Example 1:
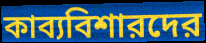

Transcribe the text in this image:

কাব্যবিশারদের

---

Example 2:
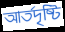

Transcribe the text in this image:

আর্তদৃষ্টি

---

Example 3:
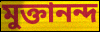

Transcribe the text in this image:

মুক্তানন্দ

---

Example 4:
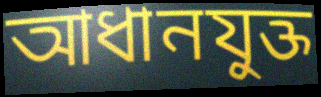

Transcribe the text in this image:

আধানযুক্ত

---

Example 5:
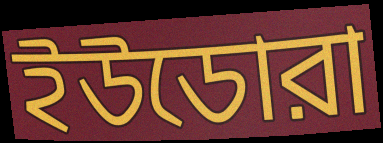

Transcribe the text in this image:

ইউডোরা